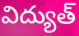
విద్యుత్